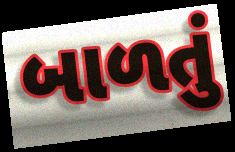
બાળતું